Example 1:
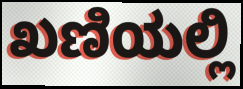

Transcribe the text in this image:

ಖಣಿಯಲ್ಲಿ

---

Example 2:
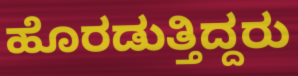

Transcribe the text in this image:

ಹೊರಡುತ್ತಿದ್ದರು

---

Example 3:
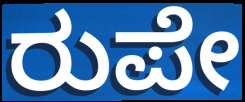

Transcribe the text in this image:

ರುಪೇ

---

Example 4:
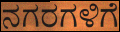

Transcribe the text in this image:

ನಗರಗಳಿಗೆ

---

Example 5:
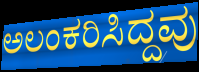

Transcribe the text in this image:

ಅಲಂಕರಿಸಿದ್ದವು